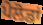
ਪੇਲੋਡਾਂ